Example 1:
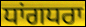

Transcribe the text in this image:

ਧਾਂਗਧਰਾ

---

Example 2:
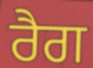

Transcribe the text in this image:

ਰੈਗ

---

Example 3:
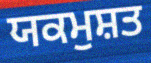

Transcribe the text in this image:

ਯਕਮੁਸ਼ਤ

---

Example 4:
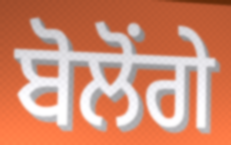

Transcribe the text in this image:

ਬੋਲੋਂਗੇ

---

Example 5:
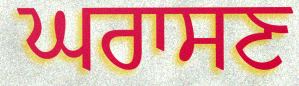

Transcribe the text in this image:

ਘਰਾਸਣ